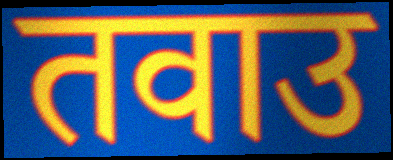
तवाउ